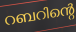
റബറിന്റെ